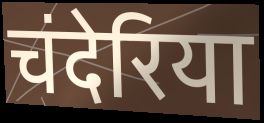
चंदेरिया